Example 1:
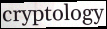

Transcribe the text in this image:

cryptology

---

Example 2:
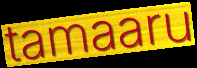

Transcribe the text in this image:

tamaaru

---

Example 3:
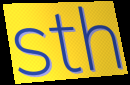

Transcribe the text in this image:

sth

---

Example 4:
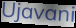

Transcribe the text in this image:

Ujavani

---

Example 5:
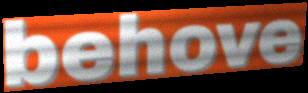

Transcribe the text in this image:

behove